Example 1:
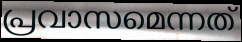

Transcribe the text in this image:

പ്രവാസമെന്നത്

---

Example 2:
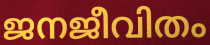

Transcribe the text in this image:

ജനജീവിതം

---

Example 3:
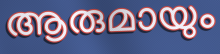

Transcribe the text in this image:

ആരുമായും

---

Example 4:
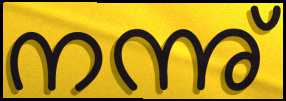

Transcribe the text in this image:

നന്നു്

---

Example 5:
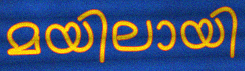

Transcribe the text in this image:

മയിലായി